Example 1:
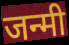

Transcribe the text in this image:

जन्मी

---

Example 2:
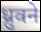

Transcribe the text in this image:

ध्रुवने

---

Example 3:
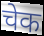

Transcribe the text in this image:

चेक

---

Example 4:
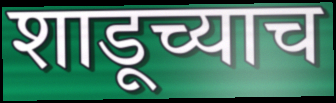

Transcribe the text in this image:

शाडूच्याच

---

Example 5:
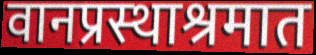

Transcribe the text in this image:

वानप्रस्थाश्रमात